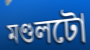
মণ্ডলটো